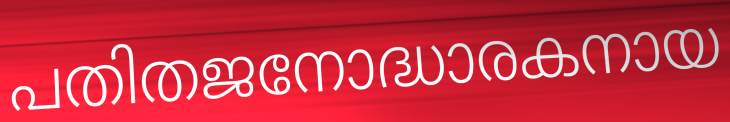
പതിതജനോദ്ധാരകനായ